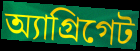
অ্যাগ্রিগেট